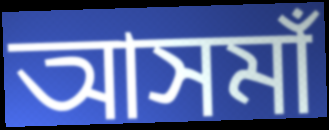
আসমাঁ